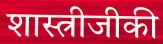
शास्त्रीजीकी